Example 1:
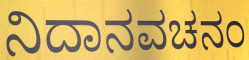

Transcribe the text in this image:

ನಿದಾನವಚನಂ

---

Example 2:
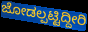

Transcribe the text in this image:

ಜೋಡಲ್ಪಟ್ಟಿದ್ದೀರಿ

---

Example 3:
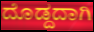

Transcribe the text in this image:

ದೊಡ್ದದಾಗಿ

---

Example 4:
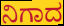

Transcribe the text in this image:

ನಿಗಾದ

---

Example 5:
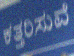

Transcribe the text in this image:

ಕತ್ತರಿಸುವೆ